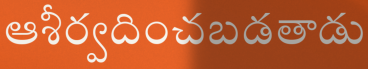
ఆశీర్వదించబడతాడు